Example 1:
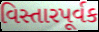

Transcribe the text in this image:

વિસ્તારપૂર્વક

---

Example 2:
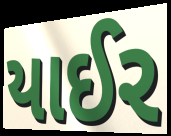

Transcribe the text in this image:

યાઈર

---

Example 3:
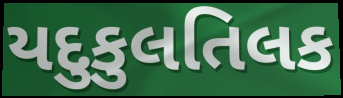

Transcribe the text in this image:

યદુકુલતિલક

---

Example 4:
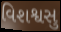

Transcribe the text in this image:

વિશશ્વસુ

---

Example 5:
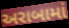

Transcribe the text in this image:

અરાબામાં